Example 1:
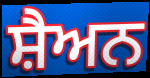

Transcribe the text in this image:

ਸ਼ੈਅਨ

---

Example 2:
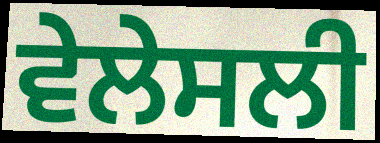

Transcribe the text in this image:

ਵੇਲੇਸਲੀ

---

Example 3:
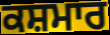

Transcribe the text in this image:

ਕਸ਼ਮਾਰ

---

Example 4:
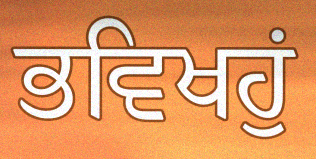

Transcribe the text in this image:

ਭਵਿਖਹੁਂ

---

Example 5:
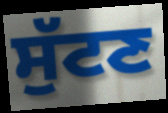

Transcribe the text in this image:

ਸੁੱਟਣ